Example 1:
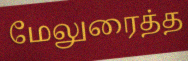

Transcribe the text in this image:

மேலுரைத்த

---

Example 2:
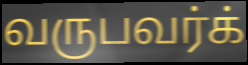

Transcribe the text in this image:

வருபவர்க்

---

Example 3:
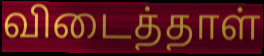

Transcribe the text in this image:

விடைத்தாள்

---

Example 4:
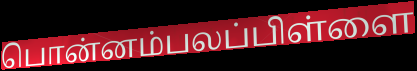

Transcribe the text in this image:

பொன்னம்பலப்பிள்ளை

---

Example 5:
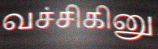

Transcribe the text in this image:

வச்சிகினு